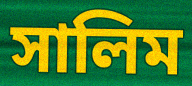
সালিম